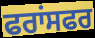
ਫਰਾਂਸਫਰ